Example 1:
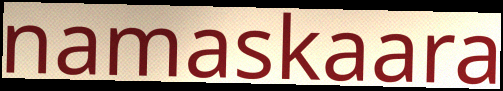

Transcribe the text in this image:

namaskaara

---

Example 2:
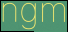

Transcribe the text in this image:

ngm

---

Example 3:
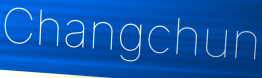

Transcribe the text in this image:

Changchun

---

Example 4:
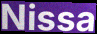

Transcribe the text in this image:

Nissa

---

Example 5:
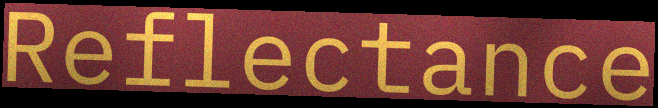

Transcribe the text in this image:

Reflectance